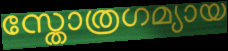
സ്തോത്രഗമ്യായ